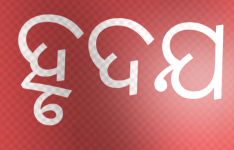
ହୃଦଯ